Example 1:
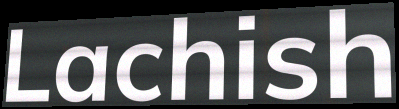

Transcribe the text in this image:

Lachish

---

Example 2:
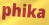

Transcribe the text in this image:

phika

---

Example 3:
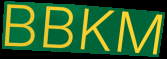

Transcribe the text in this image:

BBKM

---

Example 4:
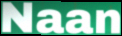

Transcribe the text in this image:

Naan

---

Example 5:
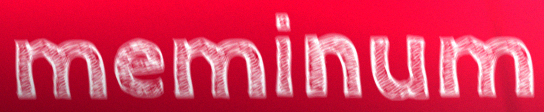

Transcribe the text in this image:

meminum